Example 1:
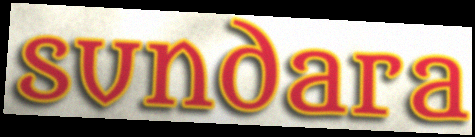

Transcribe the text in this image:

sundara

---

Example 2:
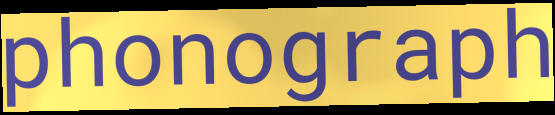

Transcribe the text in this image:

phonograph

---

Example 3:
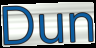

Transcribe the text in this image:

Dun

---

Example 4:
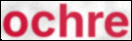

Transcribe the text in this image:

ochre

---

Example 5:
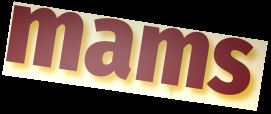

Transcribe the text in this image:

mams